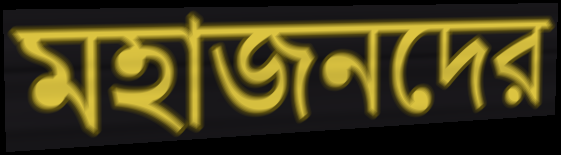
মহাজনদের